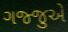
ગજ્જુએ